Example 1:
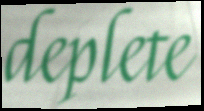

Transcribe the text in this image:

deplete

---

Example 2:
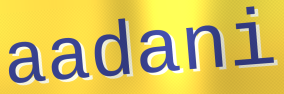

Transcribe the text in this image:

aadani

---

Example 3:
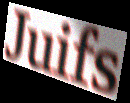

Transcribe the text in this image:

Juifs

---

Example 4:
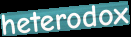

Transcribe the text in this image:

heterodox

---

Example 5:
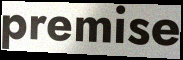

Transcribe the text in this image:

premise